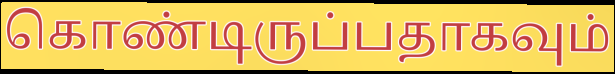
கொண்டிருப்பதாகவும்